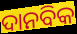
ଦାନବିକ